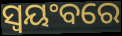
ସ୍ଵୟଂବରେ